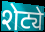
शेट्ये